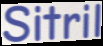
Sitril